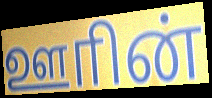
ஊரின்